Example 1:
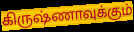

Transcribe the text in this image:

கிருஷ்ணாவுக்கும்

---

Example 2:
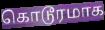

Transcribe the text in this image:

கொடூரமாக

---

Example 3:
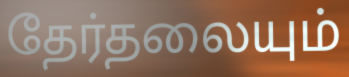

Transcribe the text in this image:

தேர்தலையும்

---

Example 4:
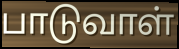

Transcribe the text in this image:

பாடுவாள்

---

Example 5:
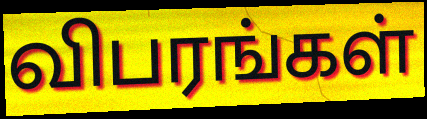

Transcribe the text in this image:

விபரங்கள்